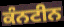
ਕੰਨਟੀਨ